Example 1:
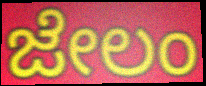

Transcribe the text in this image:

ಜೇಲಂ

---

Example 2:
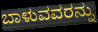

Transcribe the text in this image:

ಬಾಳುವವರನ್ನು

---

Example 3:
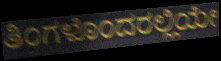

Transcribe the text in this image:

ತಿಂಗಳೊಂದರಲ್ಲಿಯೇ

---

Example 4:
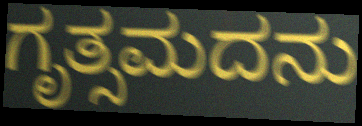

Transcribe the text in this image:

ಗೃತ್ಸಮದನು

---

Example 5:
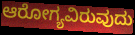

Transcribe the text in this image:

ಆರೋಗ್ಯವಿರುವುದು